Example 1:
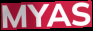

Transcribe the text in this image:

MYAS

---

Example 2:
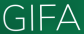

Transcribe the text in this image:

GIFA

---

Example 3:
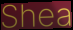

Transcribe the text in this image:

Shea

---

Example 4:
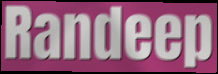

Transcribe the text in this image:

Randeep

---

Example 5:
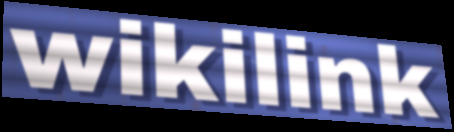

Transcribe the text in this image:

wikilink